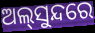
ଅଲ୍‌ସୁନ୍ଦରେ